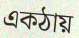
একঠায়